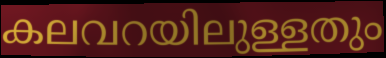
കലവറയിലുള്ളതും